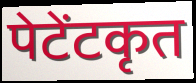
पेटेंटकृत